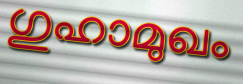
ഗുഹാമുഖം